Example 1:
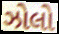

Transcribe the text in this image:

ઝોલો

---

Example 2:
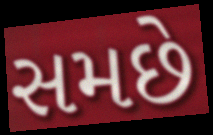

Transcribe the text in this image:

સમછે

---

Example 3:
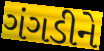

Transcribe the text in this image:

ગંગડીને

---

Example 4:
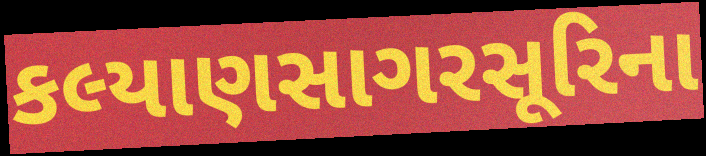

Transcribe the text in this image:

કલ્યાણસાગરસૂરિના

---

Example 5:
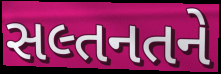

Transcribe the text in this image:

સલ્તનતને